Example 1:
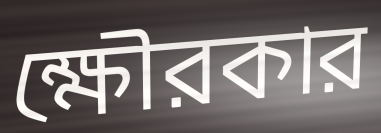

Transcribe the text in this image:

ক্ষৌরকার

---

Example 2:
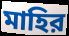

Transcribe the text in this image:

মাহির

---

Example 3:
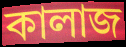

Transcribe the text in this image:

কালাজ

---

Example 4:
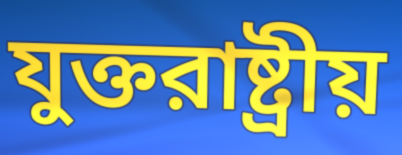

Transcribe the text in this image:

যুক্তরাষ্ট্রীয়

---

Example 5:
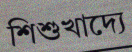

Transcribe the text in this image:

শিশুখাদ্যে